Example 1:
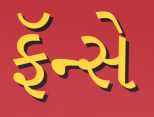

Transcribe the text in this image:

ફૅન્સે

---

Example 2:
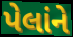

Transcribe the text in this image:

પેલાંને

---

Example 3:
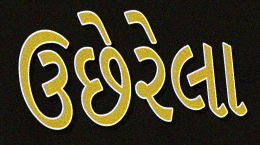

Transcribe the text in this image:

ઉછેરેલા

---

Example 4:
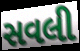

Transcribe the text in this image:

સવલી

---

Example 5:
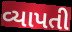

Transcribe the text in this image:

વ્યાપતી